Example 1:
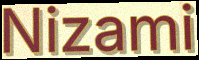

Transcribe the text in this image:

Nizami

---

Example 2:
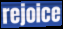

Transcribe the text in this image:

rejoice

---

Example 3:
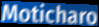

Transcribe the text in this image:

Moticharo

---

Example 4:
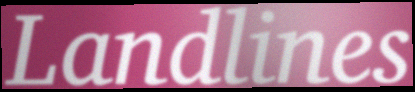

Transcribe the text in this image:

Landlines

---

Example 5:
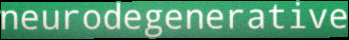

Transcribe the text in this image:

neurodegenerative